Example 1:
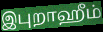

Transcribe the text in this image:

இபுறாஹீம்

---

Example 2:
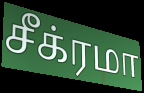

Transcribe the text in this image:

சீக்ரமா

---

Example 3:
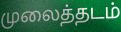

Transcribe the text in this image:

முலைத்தடம்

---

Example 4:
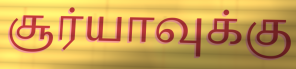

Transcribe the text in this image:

சூர்யாவுக்கு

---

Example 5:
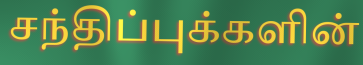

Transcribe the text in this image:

சந்திப்புக்களின்